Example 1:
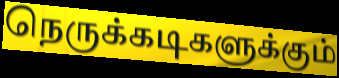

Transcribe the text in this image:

நெருக்கடிகளுக்கும்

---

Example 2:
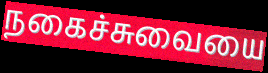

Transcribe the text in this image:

நகைச்சுவையை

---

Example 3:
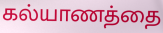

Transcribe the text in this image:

கல்யாணத்தை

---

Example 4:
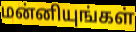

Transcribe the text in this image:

மன்னியுங்கள்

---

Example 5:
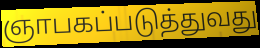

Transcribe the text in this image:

ஞாபகப்படுத்துவது